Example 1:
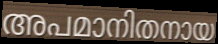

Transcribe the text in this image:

അപമാനിതനായ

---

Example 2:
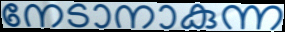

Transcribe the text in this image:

നേടാനാകുന്ന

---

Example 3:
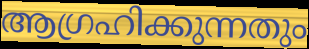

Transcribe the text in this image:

ആഗ്രഹിക്കുന്നതും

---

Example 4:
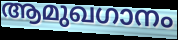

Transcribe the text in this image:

ആമുഖഗാനം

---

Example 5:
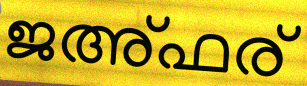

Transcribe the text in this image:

ജഅ്ഫര്